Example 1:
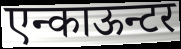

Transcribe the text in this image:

एन्काऊन्टर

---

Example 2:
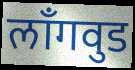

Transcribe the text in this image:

लाँगवुड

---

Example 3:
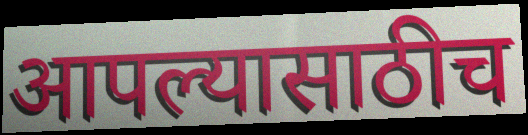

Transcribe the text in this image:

आपल्यासाठीच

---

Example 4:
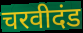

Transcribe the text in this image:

चरवीदंड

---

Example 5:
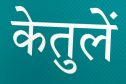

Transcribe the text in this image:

केतुलें